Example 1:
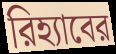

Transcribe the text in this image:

রিহ্যাবের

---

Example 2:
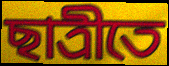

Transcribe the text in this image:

ছাত্রীতে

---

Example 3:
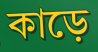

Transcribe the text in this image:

কাড়ে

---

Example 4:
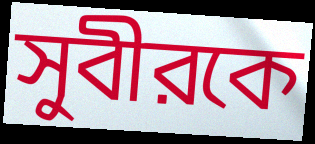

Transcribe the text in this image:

সুবীরকে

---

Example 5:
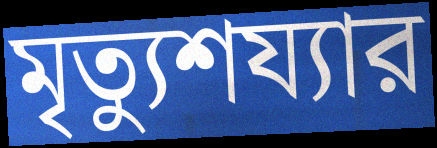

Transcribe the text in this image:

মৃত্যুশয্যার